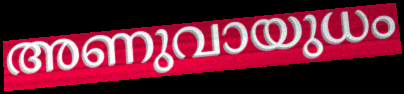
അണുവായുധം